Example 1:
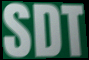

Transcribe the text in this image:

SDT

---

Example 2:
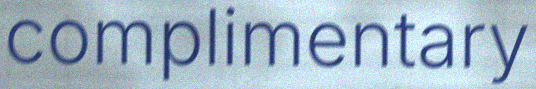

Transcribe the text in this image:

complimentary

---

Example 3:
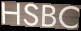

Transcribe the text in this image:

HSBC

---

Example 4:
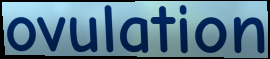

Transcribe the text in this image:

ovulation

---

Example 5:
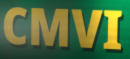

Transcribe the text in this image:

CMVI